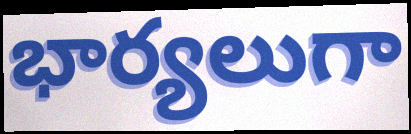
భార్యలుగా